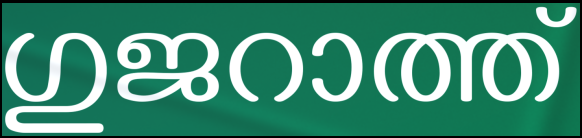
ഗുജറാത്ത്